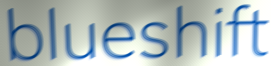
blueshift